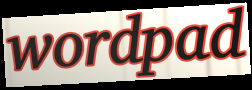
wordpad